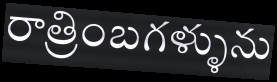
రాత్రింబగళ్ళును